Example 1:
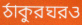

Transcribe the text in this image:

ঠাকুরঘরও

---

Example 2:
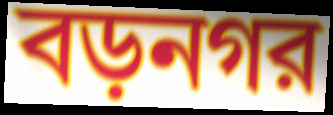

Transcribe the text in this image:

বড়নগর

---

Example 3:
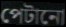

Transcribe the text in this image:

পেটানো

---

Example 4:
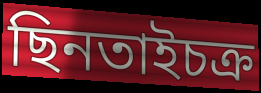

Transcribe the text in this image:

ছিনতাইচক্র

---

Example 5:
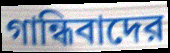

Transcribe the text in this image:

গান্ধিবাদের